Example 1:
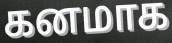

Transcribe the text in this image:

கனமாக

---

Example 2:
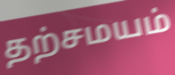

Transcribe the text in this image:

தற்சமயம்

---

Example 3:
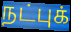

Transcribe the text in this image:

நட்புக்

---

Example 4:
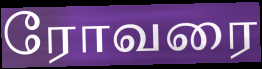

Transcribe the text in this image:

ரோவரை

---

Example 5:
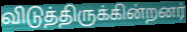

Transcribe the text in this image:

விடுத்திருக்கின்றனர்